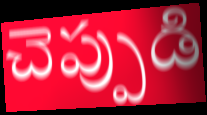
చెప్పుడి